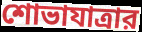
শোভাযাত্রার